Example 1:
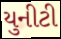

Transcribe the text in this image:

યુનીટી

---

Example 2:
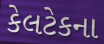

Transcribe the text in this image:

કેલટેકના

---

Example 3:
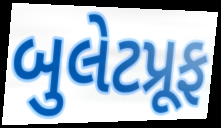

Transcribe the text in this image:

બુલેટપ્રૂફ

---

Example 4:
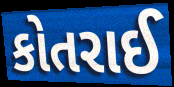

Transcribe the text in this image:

કોતરાઈ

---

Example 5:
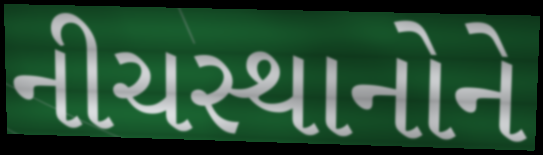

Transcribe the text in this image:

નીચસ્થાનોને